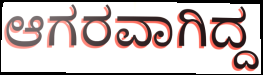
ಆಗರವಾಗಿದ್ದ